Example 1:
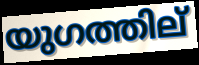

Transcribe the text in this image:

യുഗത്തില്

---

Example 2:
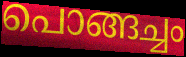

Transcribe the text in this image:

പൊങ്ങച്ചം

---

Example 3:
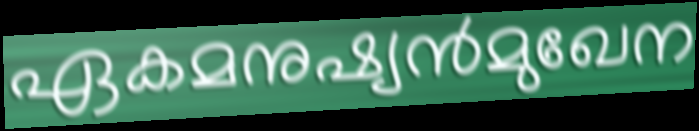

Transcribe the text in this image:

ഏകമനുഷ്യൻമുഖേന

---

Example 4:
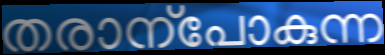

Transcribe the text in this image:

തരാന്പോകുന്ന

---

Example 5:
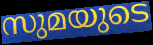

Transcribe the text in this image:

സുമയുടെ